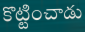
కొట్టించాడు